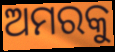
ଅମରକୁ